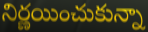
నిర్ణయించుకున్నా